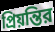
প্রিয়ন্তির